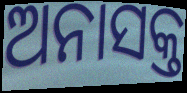
ଅନାସକ୍ତ